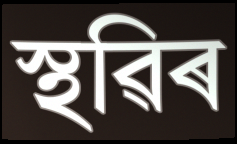
স্থৱিৰ